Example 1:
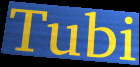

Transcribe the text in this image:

Tubi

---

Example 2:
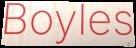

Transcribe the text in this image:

Boyles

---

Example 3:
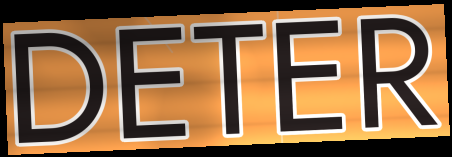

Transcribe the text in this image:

DETER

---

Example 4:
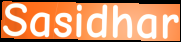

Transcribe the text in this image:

Sasidhar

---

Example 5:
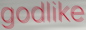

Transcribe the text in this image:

godlike